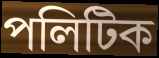
পলিটিক